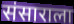
संसाराला